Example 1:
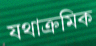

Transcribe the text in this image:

যথাক্ৰমিক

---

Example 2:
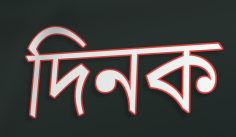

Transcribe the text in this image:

দিনক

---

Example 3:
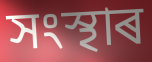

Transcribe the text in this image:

সংস্থাৰ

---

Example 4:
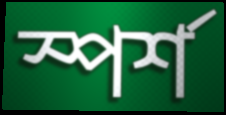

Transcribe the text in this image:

স্পৰ্শ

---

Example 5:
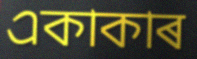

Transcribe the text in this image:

একাকাৰ